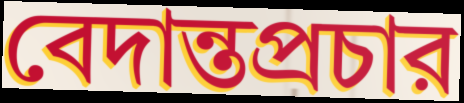
বেদান্তপ্রচার